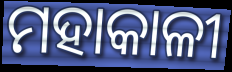
ମହାକାଳୀ